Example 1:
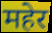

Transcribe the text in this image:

महेर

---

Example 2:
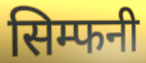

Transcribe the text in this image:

सिम्फनी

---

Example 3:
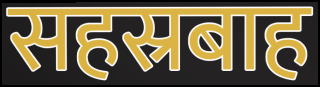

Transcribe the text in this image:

सहस्रबाह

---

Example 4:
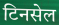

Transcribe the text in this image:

टिनसेल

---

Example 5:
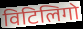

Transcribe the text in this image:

विटिलिगो